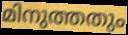
മിനുത്തതും